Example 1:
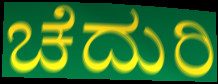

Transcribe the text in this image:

ಚೆದುರಿ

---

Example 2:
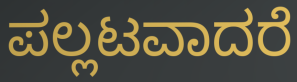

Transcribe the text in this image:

ಪಲ್ಲಟವಾದರೆ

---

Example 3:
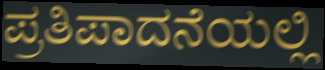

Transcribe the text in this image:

ಪ್ರತಿಪಾದನೆಯಲ್ಲಿ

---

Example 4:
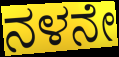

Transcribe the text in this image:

ನಳನೇ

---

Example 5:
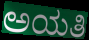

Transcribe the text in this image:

ಅಯತಿ